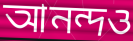
আনন্দও